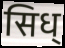
सिध्